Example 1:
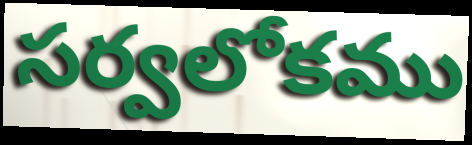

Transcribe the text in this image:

సర్వలోకము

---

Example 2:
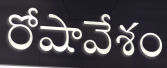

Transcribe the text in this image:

రోషావేశం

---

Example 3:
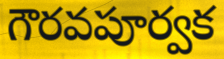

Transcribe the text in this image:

గౌరవపూర్వక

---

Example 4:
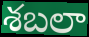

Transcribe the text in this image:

శబలా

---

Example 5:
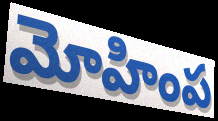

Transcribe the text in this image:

మోహింప